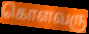
கொளவரு